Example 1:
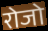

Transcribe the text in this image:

रोजो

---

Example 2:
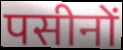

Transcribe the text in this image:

पसीनों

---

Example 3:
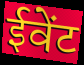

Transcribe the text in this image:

ईवेंट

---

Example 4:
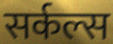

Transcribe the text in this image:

सर्कल्‍स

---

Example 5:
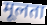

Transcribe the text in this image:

मूलता